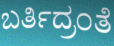
ಬರ್ತಿದ್ರಂತೆ